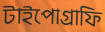
টাইপোগ্রাফি